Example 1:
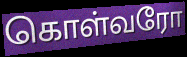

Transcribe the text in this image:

கொள்வரோ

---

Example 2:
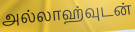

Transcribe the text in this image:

அல்லாஹ்வுடன்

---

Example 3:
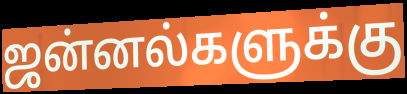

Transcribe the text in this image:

ஜன்னல்களுக்கு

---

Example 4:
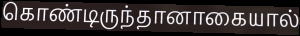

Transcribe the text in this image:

கொண்டிருந்தானாகையால்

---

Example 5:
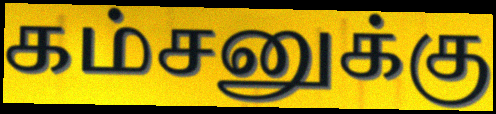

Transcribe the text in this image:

கம்சனுக்கு